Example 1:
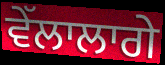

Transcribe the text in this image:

ਵੇੱਲਾਲਾਗੇ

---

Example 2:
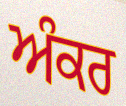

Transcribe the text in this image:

ਅੰਕਰ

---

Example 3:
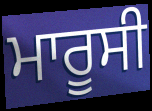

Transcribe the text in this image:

ਮਾਰੂਸੀ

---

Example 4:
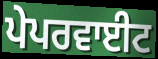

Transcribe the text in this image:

ਪੇਪਰਵਾਈਟ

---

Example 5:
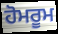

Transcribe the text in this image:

ਹੋਮਰੂਮ